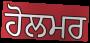
ਹੋਲਮਰ